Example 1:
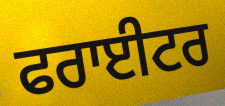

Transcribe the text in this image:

ਫਰਾਈਟਰ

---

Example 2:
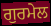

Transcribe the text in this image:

ਗੁਰਮੇਲ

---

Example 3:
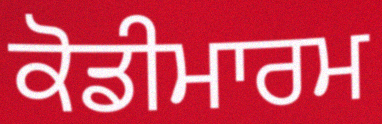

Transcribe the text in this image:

ਕੋਡੀਮਾਰਮ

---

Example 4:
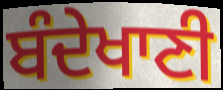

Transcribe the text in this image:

ਬੰਦੇਖਾਣੀ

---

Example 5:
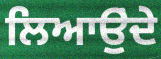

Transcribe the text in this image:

ਲਿਆਉੁਂਦੇ